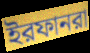
ইরফানরা